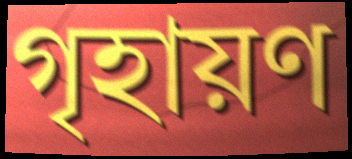
গৃহায়ণ